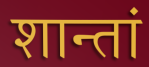
शान्तां